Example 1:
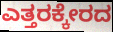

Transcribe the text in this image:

ಎತ್ತರಕ್ಕೇರದ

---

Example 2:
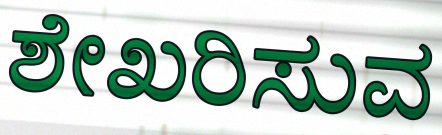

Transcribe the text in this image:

ಶೇಖರಿಸುವ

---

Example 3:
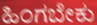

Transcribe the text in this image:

ಹಿಂಗಬೇಕು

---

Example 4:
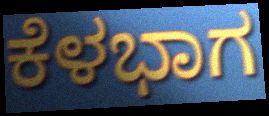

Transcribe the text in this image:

ಕೆಳಭಾಗ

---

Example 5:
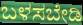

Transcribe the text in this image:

ಬಳಸಬೇಡಿ